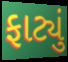
ફાટ્યું